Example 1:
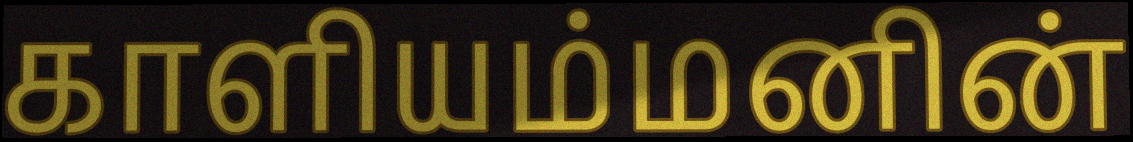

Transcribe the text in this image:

காளியம்மனின்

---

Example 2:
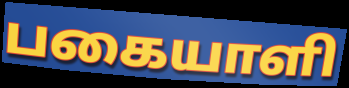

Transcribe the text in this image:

பகையாளி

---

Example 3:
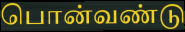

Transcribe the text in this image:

பொன்வண்டு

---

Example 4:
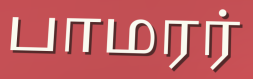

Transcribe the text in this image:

பாமரர்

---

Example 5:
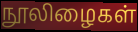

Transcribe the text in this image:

நூலிழைகள்